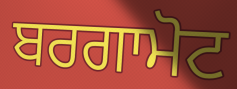
ਬਰਗਾਮੋਟ